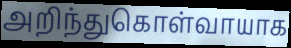
அறிந்துகொள்வாயாக